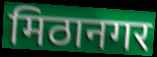
मिठानगर